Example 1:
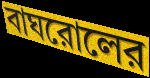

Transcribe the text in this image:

বাঘরোলের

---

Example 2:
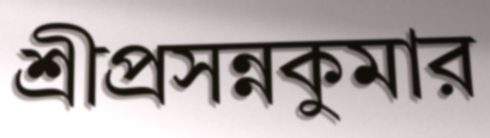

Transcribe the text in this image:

শ্রীপ্রসন্নকুমার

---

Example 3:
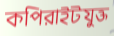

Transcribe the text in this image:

কপিরাইটযুক্ত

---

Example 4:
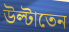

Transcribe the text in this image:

উল্টাতেন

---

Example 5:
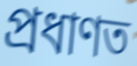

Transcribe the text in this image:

প্রধাণত